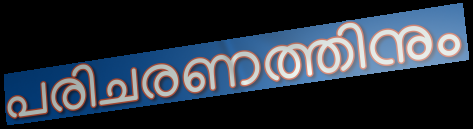
പരിചരണത്തിനും